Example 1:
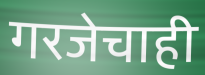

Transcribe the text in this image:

गरजेचाही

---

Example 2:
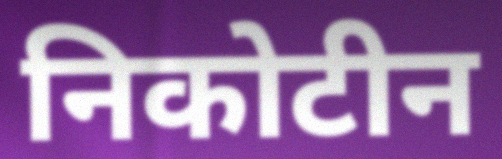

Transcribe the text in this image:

निकोटीन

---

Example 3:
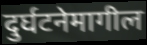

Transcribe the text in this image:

दुर्घटनेमागील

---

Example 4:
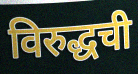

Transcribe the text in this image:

विरुद्धची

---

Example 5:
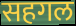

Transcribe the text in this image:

सहगल